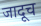
जादूच